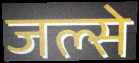
जल्से